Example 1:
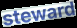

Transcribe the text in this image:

steward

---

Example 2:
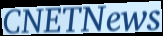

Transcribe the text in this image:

CNETNews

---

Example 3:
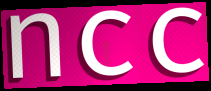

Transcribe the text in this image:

ncc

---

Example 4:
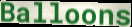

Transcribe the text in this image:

Balloons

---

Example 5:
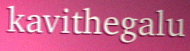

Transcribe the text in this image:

kavithegalu